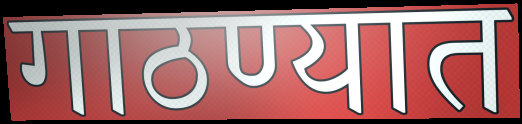
गाठण्यात